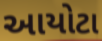
આયોટા